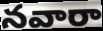
నవారా